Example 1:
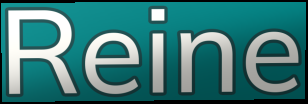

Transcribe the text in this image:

Reine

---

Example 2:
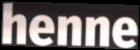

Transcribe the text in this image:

henne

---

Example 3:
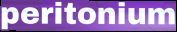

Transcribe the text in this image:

peritonium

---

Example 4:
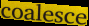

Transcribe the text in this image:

coalesce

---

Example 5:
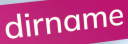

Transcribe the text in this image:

dirname